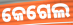
କେଗେଲ